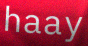
haay